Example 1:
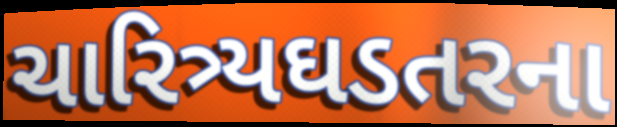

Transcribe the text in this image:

ચારિત્ર્યઘડતરના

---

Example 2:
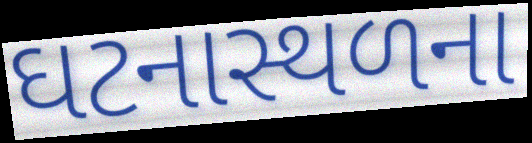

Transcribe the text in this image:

ઘટનાસ્થળના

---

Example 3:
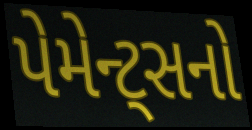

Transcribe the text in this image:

પેમેન્ટ્સનો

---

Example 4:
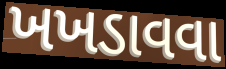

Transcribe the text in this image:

ખખડાવવા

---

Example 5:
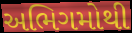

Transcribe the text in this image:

અભિગમોથી